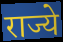
राज्ये